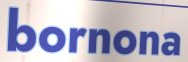
bornona